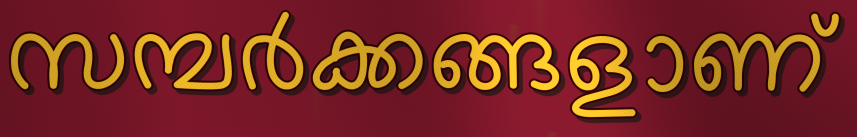
സമ്പർക്കങ്ങളാണ്